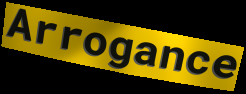
Arrogance